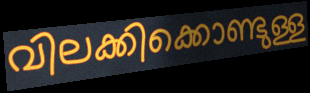
വിലക്കിക്കൊണ്ടുള്ള